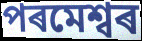
পৰমেশ্বৰ